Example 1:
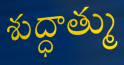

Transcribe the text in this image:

శుద్ధాత్ము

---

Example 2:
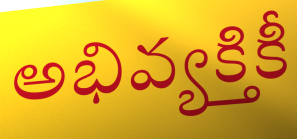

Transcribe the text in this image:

అభివ్యక్తికీ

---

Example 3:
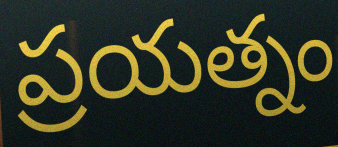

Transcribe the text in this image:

ప్రయత్నం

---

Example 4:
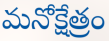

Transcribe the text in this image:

మనోక్షేత్రం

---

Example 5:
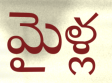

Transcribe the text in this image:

మైళ్ల